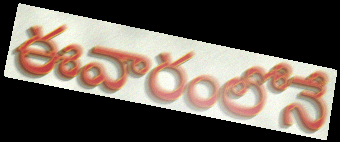
ఈవారంలోనే